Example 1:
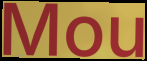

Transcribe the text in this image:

Mou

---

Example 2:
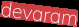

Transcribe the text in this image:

devaram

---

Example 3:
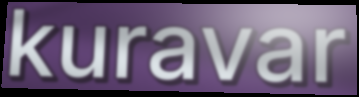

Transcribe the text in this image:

kuravar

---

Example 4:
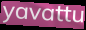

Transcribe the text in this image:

yavattu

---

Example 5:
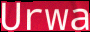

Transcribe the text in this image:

Urwa